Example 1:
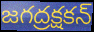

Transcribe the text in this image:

జగద్రక్షకన్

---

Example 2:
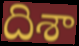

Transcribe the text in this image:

దిశా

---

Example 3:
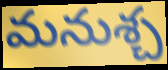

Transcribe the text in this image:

మనుశ్చ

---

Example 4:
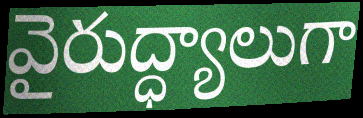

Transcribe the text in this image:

వైరుద్ధ్యాలుగా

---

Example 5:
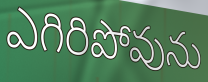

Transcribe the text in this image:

ఎగిరిపోవును